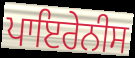
ਪਾਇਰੇਨੀਸ